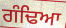
ਗੰਢਿਆ